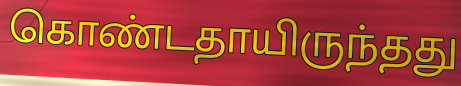
கொண்டதாயிருந்தது